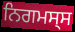
ਨਿਗਮਸ੍ਸ